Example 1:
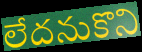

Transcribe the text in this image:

లేదనుకొని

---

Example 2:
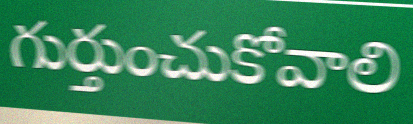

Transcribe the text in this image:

గుర్తుంచుకోవాలి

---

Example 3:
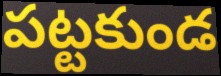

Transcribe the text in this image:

పట్టకుండ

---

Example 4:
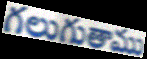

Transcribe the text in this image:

గలుగుతాము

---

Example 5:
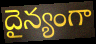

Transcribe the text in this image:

దైన్యంగా